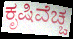
ಕೃಷಿವೆಚ್ಚ